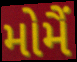
મોમૈં